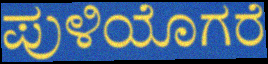
ಪುಳಿಯೊಗರೆ